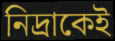
নিদ্রাকেই